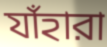
যাঁহারা